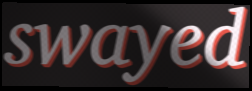
swayed